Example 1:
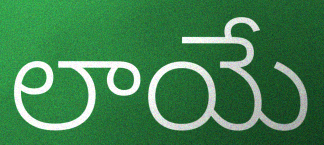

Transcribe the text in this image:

లాయే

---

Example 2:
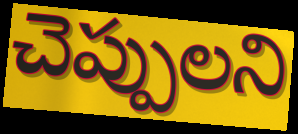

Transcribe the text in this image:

చెప్పులని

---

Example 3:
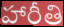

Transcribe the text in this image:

హారీతి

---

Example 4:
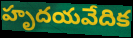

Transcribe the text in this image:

హృదయవేదిక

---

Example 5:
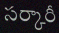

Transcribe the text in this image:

సర్కారీ